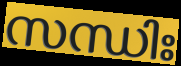
സന്ധിഃ